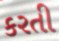
કરતી